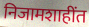
निजामशाहींत